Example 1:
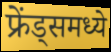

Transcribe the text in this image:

फ्रेंड्समध्ये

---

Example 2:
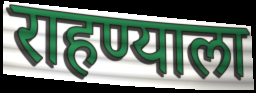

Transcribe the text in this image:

राहण्याला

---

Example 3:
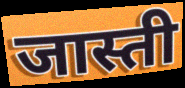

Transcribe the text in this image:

जास्ती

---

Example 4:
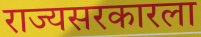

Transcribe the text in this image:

राज्यसरकारला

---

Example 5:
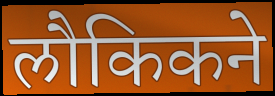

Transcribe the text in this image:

लौकिकने